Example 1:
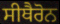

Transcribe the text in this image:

ਸੀਥੈਰੋਨ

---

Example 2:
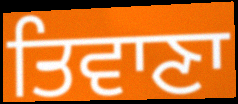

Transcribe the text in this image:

ਤਿਵਾਣਾ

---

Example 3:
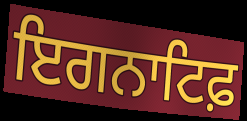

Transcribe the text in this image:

ਇਗਨਾਟਿਫ਼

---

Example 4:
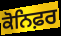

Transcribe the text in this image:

ਕੋਨਿਫ਼ਰ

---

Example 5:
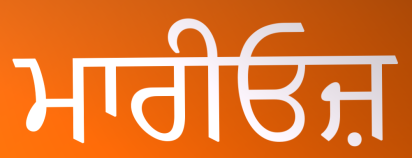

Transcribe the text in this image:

ਮਾਰੀਓਜ਼